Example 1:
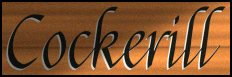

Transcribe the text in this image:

Cockerill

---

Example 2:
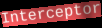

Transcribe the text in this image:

Interceptor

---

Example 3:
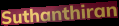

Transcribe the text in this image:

Suthanthiran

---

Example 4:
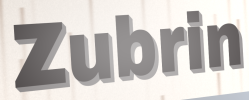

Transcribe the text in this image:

Zubrin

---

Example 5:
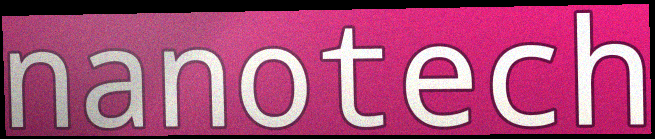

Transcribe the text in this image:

nanotech